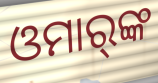
ଓମାର୍‌ଙ୍କ